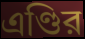
এণ্ডির